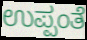
ಉಪ್ಪಂತೆ